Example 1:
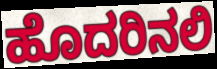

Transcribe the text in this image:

ಹೊದರಿನಲಿ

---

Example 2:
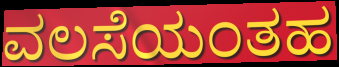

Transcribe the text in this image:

ವಲಸೆಯಂತಹ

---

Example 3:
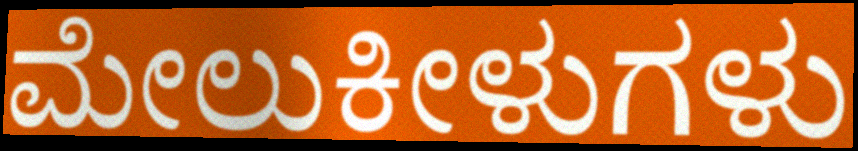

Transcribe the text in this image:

ಮೇಲುಕೀಳುಗಳು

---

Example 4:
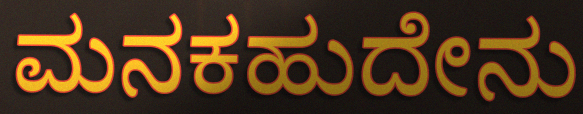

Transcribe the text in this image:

ಮನಕಹುದೇನು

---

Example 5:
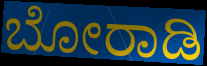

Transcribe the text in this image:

ಬೋರಾಡಿ